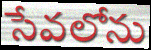
సేవలోను